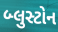
બ્લુસ્ટોન